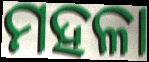
ମହଳା